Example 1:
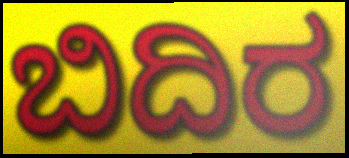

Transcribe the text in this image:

ಬಿದಿರ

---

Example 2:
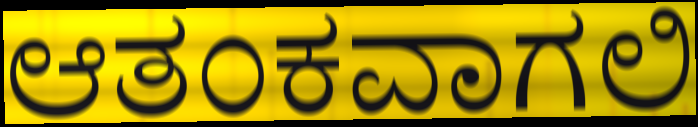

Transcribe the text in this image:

ಆತಂಕವಾಗಲಿ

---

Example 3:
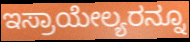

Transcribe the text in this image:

ಇಸ್ರಾಯೇಲ್ಯರನ್ನೂ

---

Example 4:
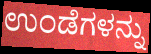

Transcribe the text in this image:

ಉಂಡೆಗಳನ್ನು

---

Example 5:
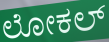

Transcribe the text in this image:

ಲೋಕಲ್